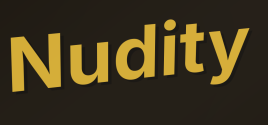
Nudity